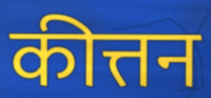
कीत्तन